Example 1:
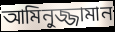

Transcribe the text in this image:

আমিনুজ্জামান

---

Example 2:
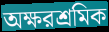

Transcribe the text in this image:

অক্ষরশ্রমিক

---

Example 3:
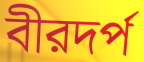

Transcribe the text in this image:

বীরদর্প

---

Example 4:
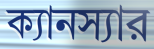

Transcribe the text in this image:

ক্যানস্যার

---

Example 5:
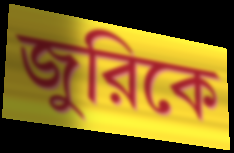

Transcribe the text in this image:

জুরিকে